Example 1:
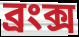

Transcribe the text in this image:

ব্রংক্স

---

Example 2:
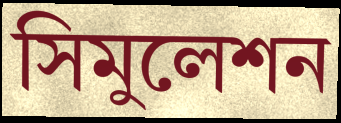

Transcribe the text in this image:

সিমুলেশন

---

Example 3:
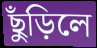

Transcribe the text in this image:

ছুঁড়িলে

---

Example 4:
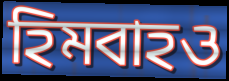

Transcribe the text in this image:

হিমবাহও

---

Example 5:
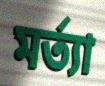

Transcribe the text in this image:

মর্ত্যা